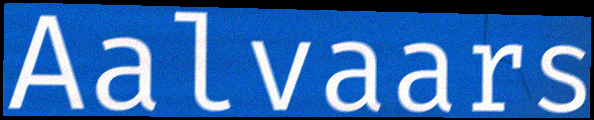
Aalvaars